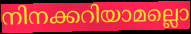
നിനക്കറിയാമല്ലൊ